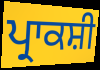
ਪ੍ਰਾਕਸ਼ੀ